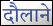
दौलाने